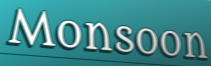
Monsoon